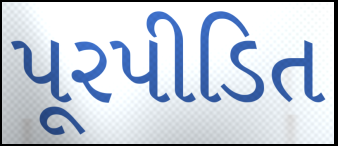
પૂરપીડિત